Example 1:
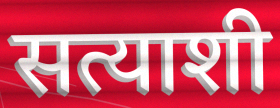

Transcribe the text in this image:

सत्याशी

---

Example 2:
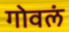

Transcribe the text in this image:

गोवलं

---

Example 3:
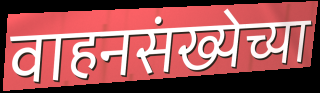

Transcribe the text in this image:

वाहनसंख्येच्या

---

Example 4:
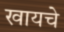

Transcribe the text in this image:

खायचे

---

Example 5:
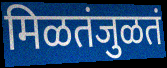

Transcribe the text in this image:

मिळतंजुळतं